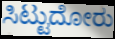
ಸಿಟ್ಟುದೋರು